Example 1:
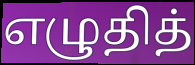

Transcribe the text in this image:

எழுதித்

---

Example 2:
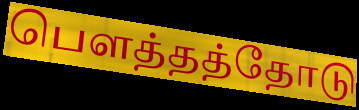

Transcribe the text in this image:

பௌத்தத்தோடு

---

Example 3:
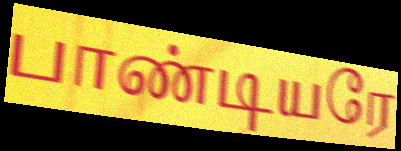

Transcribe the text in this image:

பாண்டியரே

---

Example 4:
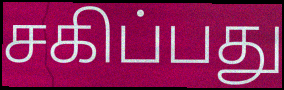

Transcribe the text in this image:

சகிப்பது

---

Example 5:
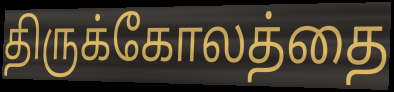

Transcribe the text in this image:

திருக்கோலத்தை